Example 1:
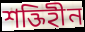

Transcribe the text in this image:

শক্তিহীন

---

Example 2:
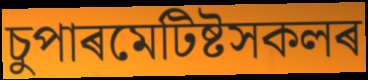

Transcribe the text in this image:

চুপাৰমেটিষ্টসকলৰ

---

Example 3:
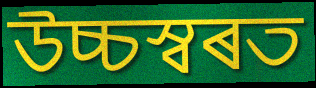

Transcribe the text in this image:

উচ্চস্বৰত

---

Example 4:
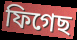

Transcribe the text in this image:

ফিগেছ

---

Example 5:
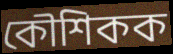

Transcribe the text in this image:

কৌশিকক